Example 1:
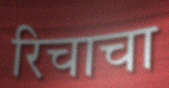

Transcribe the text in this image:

रिचाचा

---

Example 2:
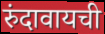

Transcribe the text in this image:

रुंदावायची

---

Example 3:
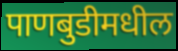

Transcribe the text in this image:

पाणबुडीमधील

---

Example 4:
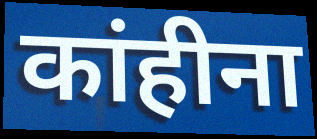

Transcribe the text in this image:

कांहीना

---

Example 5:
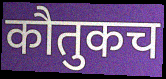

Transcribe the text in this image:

कौतुकच